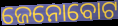
ଜେନୋବୋଟ